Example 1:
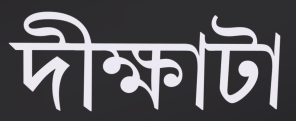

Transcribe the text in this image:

দীক্ষাটা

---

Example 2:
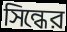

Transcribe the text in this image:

সিন্ধের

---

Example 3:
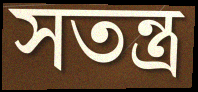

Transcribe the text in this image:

সতন্ত্র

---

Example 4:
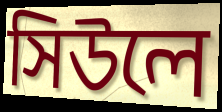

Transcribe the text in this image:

সিউলে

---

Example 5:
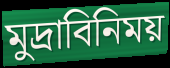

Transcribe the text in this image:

মুদ্রাবিনিময়